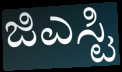
ಜಿಎಸ್ಟಿ